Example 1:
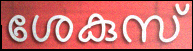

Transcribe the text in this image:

ശേകുസ്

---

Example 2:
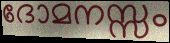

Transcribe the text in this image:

ദോമനസ്സം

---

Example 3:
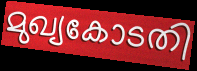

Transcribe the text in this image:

മുഖ്യകോടതി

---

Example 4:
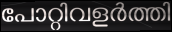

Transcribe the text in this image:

പോറ്റിവളർത്തി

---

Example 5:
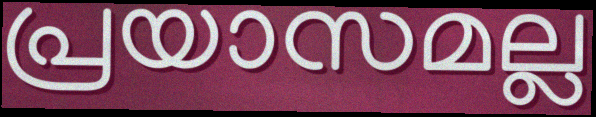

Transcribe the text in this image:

പ്രയാസമല്ല